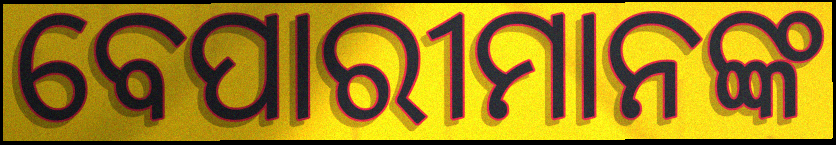
ବେପାରୀମାନଙ୍କ